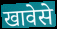
खावेसे